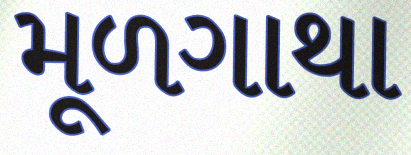
મૂળગાથા